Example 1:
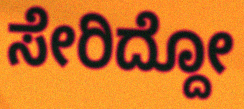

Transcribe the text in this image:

ಸೇರಿದ್ದೋ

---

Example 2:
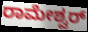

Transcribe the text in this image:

ರಾಮೇಶ್ವರ್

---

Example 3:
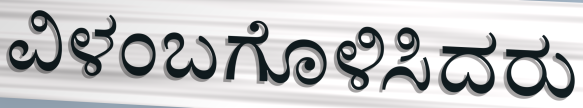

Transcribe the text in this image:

ವಿಳಂಬಗೊಳಿಸಿದರು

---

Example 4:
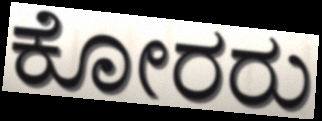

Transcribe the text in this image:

ಕೋರರು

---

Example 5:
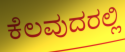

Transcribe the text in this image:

ಕೆಲವುದರಲ್ಲಿ